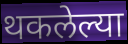
थकलेल्या